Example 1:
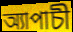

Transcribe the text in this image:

অ্যাপাচী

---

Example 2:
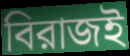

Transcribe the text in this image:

বিরাজই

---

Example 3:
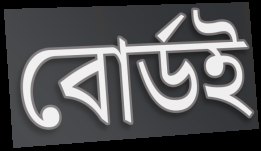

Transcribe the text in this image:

বোর্ডই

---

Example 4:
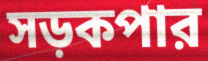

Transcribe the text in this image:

সড়কপার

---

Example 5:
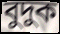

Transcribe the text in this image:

বুদুক